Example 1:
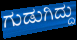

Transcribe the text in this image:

ಗುಡುಗಿದ್ದು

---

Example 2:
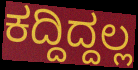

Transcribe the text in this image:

ಕದ್ದಿದ್ದಲ್ಲ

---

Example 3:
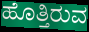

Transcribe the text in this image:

ಹೊತ್ತಿರುವ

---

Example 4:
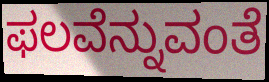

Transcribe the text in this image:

ಫಲವೆನ್ನುವಂತೆ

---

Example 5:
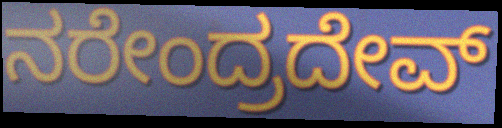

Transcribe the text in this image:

ನರೇಂದ್ರದೇವ್